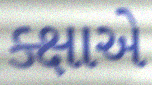
ક્ક્ષાએ